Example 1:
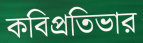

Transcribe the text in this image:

কবিপ্রতিভার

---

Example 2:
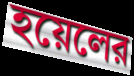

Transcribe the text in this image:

হয়েলের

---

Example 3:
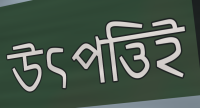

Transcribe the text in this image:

উৎপত্তিই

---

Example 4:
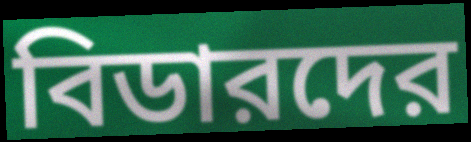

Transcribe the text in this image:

বিডারদের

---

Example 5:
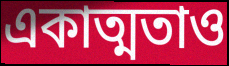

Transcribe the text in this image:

একাত্মতাও